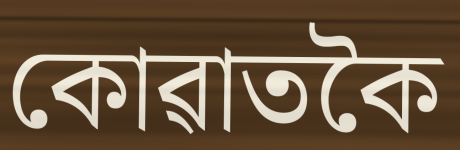
কোৱাতকৈ